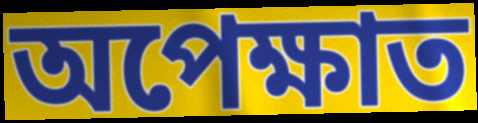
অপেক্ষাত